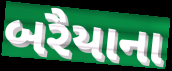
બરૈયાના